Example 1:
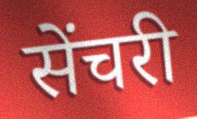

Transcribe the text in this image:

सेंचरी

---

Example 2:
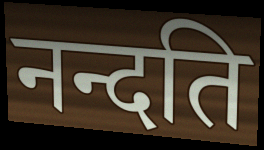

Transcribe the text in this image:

नन्दति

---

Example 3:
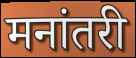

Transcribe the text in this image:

मनांतरी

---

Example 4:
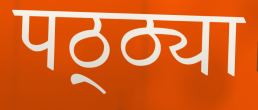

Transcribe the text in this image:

पठ्ठ्या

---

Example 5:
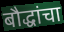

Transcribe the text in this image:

बौद्धांचा